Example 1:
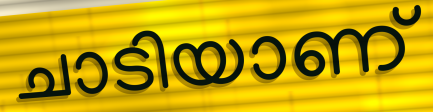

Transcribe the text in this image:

ചാടിയാണ്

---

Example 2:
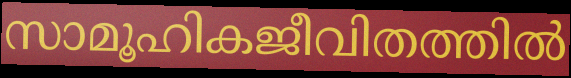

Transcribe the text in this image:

സാമൂഹികജീവിതത്തിൽ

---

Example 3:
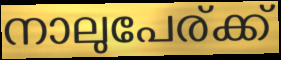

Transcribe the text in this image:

നാലുപേര്ക്ക്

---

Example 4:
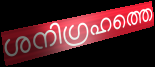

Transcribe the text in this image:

ശനിഗ്രഹത്തെ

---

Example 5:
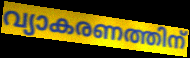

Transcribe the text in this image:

വ്യാകരണത്തിന്